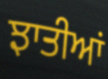
ਝਾਤੀਆਂ